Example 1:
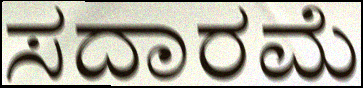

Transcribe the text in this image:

ಸದಾರಮೆ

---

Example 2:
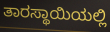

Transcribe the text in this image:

ತಾರಸ್ಥಾಯಿಯಲ್ಲಿ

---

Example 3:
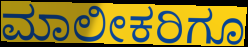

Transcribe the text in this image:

ಮಾಲೀಕರಿಗೂ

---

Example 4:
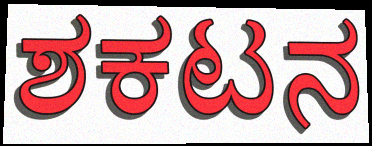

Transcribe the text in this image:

ಶಕಟನ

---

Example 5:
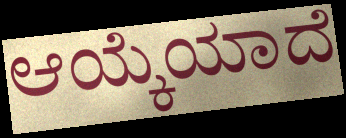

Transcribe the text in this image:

ಆಯ್ಕೆಯಾದೆ